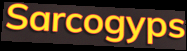
Sarcogyps